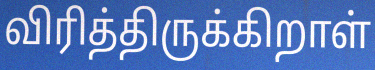
விரித்திருக்கிறாள்